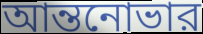
আন্তনোভার